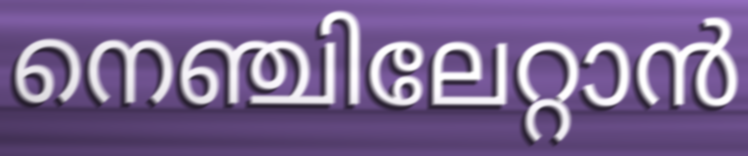
നെഞ്ചിലേറ്റാൻ